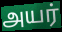
அயர்